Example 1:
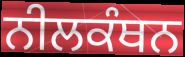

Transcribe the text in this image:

ਨੀਲਕੰਥਨ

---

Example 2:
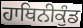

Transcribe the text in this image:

ਹਾਥਿਨੀਕੁੰਡ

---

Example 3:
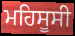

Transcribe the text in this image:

ਮਹਿਸੂਸੀ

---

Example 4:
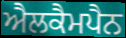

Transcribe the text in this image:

ਐਲਕੈਮਪੈਨ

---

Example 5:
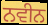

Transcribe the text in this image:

ਨਵੀਨ